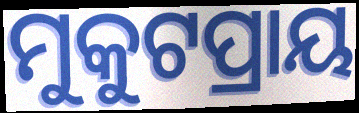
ମୁକୁଟପ୍ରାୟ